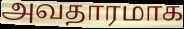
அவதாரமாக